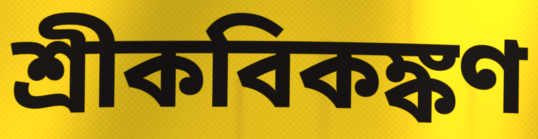
শ্রীকবিকঙ্কণ